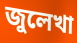
জুলেখা